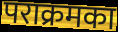
पराक्रमका